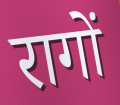
रागों